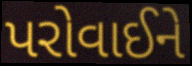
પરોવાઈને